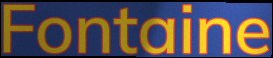
Fontaine